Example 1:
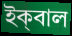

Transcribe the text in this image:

ইক্‌বাল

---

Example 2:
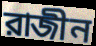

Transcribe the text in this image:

রাজীন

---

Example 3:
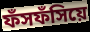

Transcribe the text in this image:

ফঁসফঁসিয়ে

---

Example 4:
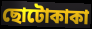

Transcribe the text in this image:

ছোটোকাকা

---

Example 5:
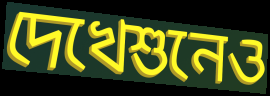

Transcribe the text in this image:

দেখেশুনেও